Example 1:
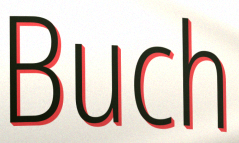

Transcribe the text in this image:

Buch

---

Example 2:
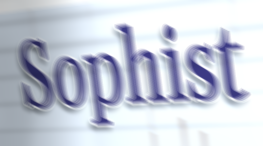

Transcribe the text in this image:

Sophist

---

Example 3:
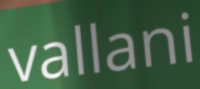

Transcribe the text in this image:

vallani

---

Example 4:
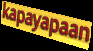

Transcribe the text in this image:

kapayapaan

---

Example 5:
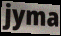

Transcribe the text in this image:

jyma